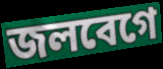
জলবেগে